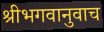
श्रीभगवानुवाच